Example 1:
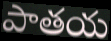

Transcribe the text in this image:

పాతయ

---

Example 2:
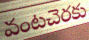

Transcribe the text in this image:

వంటచెరకు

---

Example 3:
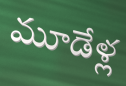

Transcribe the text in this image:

మూడేళ్ల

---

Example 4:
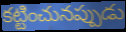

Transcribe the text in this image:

కట్టించునప్పుడు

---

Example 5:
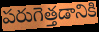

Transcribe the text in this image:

పరుగెత్తడానికి